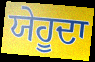
ਯੇਹੂਦਾ